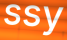
ssy